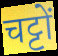
चट्टों